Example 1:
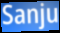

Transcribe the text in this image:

Sanju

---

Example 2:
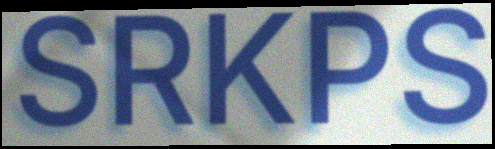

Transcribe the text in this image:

SRKPS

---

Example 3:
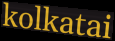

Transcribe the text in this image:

kolkatai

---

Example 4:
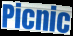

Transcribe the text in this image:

Picnic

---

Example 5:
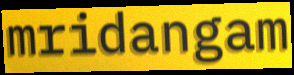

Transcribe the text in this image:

mridangam